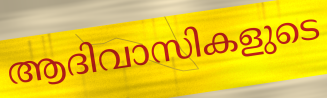
ആദിവാസികളുടെ